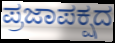
ಪ್ರಜಾಪಕ್ಷದ